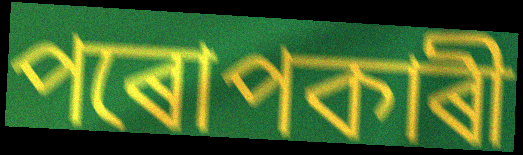
পৰোপকাৰী